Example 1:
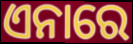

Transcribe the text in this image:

ଏନାରେ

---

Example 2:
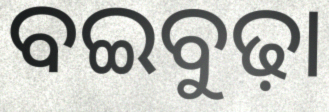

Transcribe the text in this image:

ବଇବୁଢ଼ା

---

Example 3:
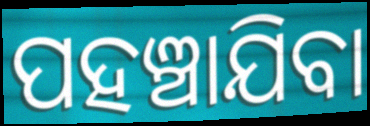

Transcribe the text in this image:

ପହଞ୍ଚାଯିବା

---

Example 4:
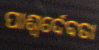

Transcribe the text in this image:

ପାଶ୍ୱର୍ଦେବତା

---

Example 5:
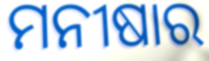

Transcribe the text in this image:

ମନୀଷାର